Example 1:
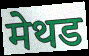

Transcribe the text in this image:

मेथड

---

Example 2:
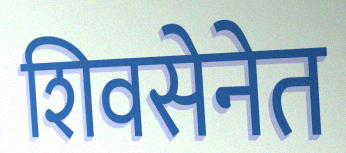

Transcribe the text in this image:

शिवसेनेत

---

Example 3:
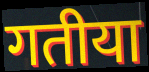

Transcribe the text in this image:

गतीया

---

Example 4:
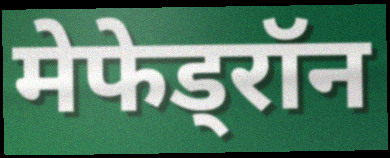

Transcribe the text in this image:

मेफेड्रॉन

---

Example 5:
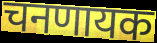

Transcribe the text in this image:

चनणायक